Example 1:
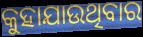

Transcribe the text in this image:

କୁହାଯାଉଥିବାର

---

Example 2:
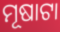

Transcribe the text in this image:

ମୂଷାଟା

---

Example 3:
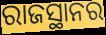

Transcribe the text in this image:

ରାଜସ୍ଥାନର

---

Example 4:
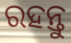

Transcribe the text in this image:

ରହନ୍ତୁ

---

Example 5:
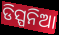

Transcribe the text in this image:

ଡିସ୍ପନିଆ